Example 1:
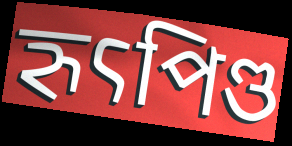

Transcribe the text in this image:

হৃৎপিণ্ড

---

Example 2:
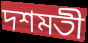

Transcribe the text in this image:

দশমতী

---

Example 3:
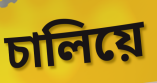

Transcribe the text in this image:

চালিয়ে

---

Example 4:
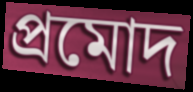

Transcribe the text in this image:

প্ৰমোদ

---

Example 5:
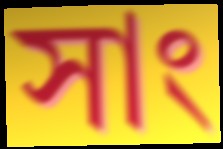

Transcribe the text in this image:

সাং